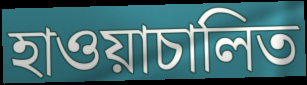
হাওয়াচালিত